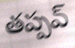
తప్పవ్